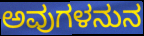
ಅವುಗಳನುನ